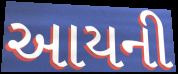
આયની